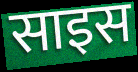
साइस